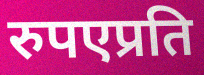
रुपएप्रति